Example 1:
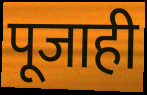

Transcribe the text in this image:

पूजाही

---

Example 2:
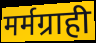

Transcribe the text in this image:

मर्मग्राही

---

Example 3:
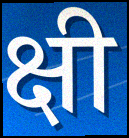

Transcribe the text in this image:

क्षी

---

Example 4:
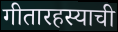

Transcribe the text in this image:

गीतारहस्याची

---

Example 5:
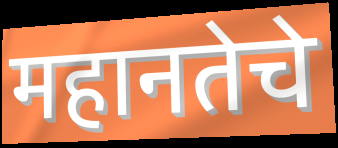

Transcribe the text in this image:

महानतेचे